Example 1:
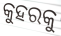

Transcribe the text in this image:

କୁହରକୁ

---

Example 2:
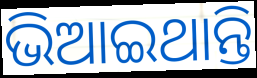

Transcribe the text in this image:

ଭିଆଇଥାନ୍ତି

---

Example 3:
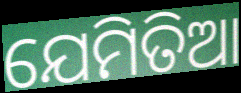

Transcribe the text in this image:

ଯେମିତିଆ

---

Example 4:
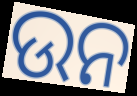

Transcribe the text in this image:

ଉନ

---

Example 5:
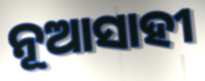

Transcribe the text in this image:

ନୂଆସାହୀ